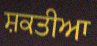
ਸ਼ਕਤੀਆ